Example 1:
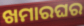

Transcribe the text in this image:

ଖମାରଘର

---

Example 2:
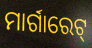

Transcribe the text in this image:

ମାର୍ଗାରେଟ୍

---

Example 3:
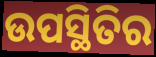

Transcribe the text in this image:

ଉପସ୍ଥିତିର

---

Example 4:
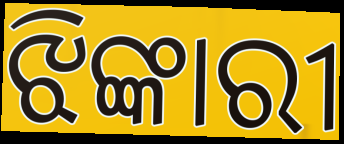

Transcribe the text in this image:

ଝିଙ୍କାରୀ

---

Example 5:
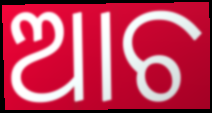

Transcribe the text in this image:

ଆଚ